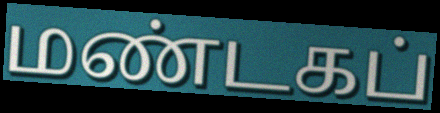
மண்டகப்